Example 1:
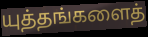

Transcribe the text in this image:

யுத்தங்களைத்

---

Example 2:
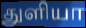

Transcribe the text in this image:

துளியா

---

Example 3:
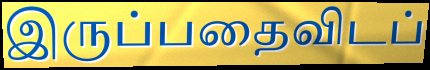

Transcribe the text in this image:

இருப்பதைவிடப்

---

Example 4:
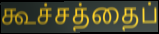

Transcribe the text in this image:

கூச்சத்தைப்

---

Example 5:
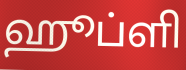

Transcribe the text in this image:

ஹூப்ளி